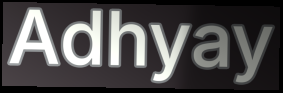
Adhyay